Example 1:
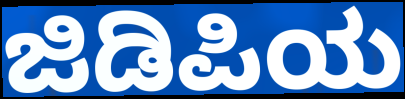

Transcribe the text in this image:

ಜಿಡಿಪಿಯ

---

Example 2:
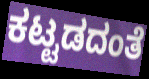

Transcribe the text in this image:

ಕಟ್ಟಡದಂತೆ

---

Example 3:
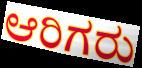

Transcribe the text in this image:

ಆರಿಗರು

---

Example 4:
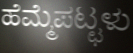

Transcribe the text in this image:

ಹೆಮ್ಮೆಪಟ್ಟಳು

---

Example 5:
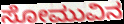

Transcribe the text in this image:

ಸೋಮುವಿನ